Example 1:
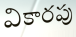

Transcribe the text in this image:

వికారపు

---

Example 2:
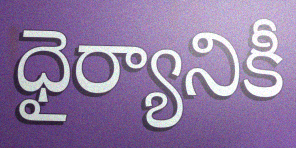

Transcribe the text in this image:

ధైర్యానికీ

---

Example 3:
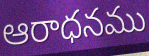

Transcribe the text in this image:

ఆరాధనము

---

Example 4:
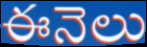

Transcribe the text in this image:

ఈనెలు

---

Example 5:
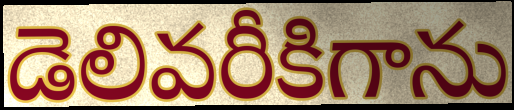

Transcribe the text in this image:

డెలివరీకిగాను